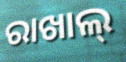
ରାଖାଲ୍